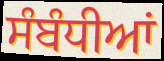
ਸੰਬੰਧੀਆਂ